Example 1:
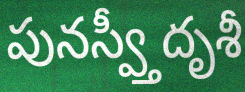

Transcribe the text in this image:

పునస్వ్తీదృశీ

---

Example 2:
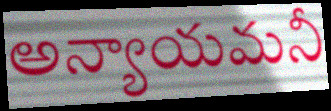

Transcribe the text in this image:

అన్యాయమనీ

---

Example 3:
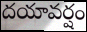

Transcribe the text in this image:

దయావర్షం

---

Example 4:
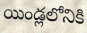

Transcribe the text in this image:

యిండ్లలోనికి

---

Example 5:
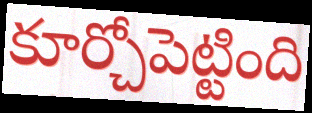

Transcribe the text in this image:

కూర్చోపెట్టింది